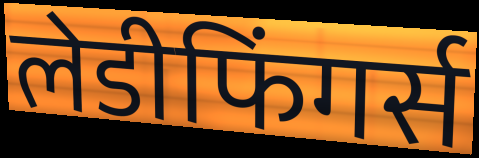
लेडीफिंगर्स